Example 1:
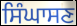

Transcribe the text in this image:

ਸਿੰਘਾਸਣ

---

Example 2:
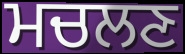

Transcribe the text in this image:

ਮਚਲਣ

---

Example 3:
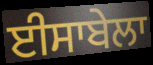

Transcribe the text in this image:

ਈਸਾਬੇਲਾ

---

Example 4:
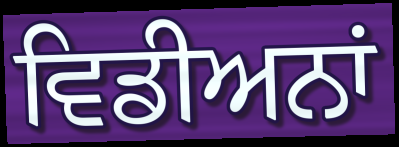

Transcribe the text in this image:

ਵਿਡੀਅਨਾਂ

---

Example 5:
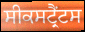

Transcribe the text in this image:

ਸੀਕਸਟ੍ਰੈਂਟਸ